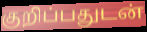
குறிப்பதுடன்